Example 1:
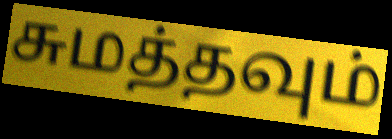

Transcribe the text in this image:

சுமத்தவும்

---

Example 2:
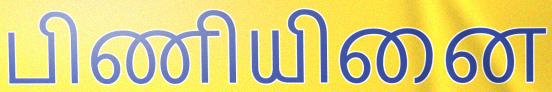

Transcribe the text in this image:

பிணியினை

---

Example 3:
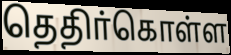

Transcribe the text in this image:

தெதிர்கொள்ள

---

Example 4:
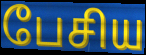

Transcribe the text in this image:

பேசிய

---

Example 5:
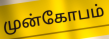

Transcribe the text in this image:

முன்கோபம்